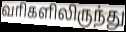
வரிகளிலிருந்து